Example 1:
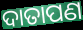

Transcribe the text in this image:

ଦାତାପଣ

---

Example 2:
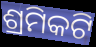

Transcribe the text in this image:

ଶ୍ରମିକଟି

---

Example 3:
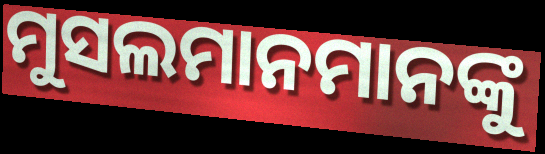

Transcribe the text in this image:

ମୁସଲମାନମାନଙ୍କୁ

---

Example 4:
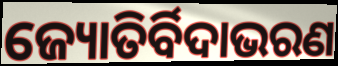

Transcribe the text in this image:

ଜ୍ୟୋତିର୍ବିଦାଭରଣ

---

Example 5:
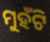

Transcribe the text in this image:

ମୁହଁଟି